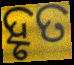
ହୃତ